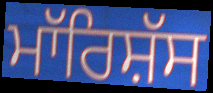
ਮਾੱਰਿਸ਼ੱਸ